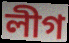
লীগ